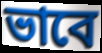
ভাবে